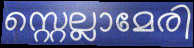
സ്റ്റെല്ലാമേരി